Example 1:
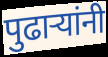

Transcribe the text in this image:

पुढाऱ्यांनी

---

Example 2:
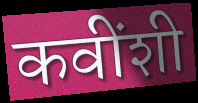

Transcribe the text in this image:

कवींशी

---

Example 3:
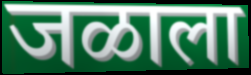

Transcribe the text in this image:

जळाला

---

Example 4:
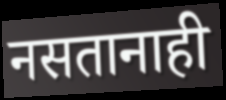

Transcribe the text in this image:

नसतानाही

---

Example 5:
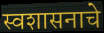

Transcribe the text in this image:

स्वशासनाचे